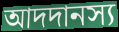
আদদানস্য